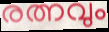
രത്നവും